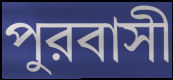
পুরবাসী